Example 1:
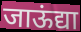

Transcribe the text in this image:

जाऊंद्या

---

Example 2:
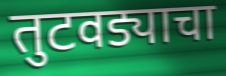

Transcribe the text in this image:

तुटवड्याचा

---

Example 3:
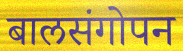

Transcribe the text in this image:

बालसंगोपन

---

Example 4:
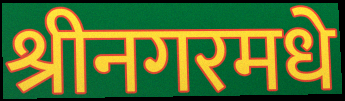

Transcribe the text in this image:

श्रीनगरमधे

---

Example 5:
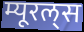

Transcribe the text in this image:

म्यूरल्स